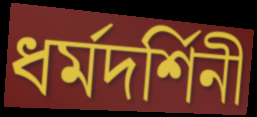
ধর্মদর্শিনী